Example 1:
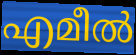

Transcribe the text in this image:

എമീൽ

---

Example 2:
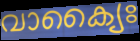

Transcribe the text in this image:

വാക്യൈഃ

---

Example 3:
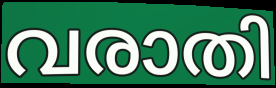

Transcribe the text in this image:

വരാതി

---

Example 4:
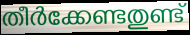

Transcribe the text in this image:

തീർക്കേണ്ടതുണ്ട്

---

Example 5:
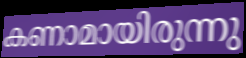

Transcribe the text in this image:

കണാമായിരുന്നു